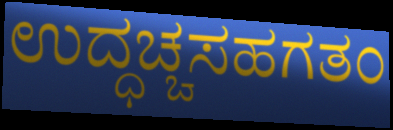
ಉದ್ಧಚ್ಚಸಹಗತಂ